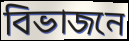
বিভাজনে